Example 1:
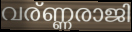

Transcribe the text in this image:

വര്ണ്ണരാജി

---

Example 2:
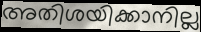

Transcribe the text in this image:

അതിശയിക്കാനില്ല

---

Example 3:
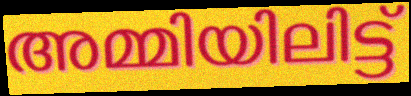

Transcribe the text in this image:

അമ്മിയിലിട്ട്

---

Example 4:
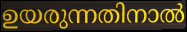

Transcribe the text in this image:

ഉയരുന്നതിനാൽ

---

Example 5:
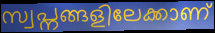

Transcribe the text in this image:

സ്വപ്നങ്ങളിലേക്കാണ്